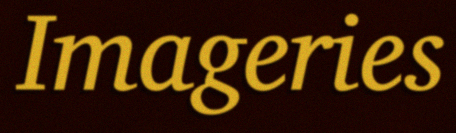
Imageries